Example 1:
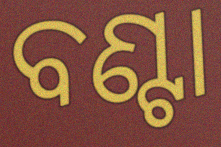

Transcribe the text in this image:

ବଣ୍ଟା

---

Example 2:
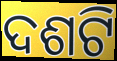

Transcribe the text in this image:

ଦଶଟି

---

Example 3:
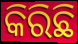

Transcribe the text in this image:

କିରିଛି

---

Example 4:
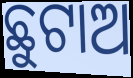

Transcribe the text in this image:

ଛୁଟାଅ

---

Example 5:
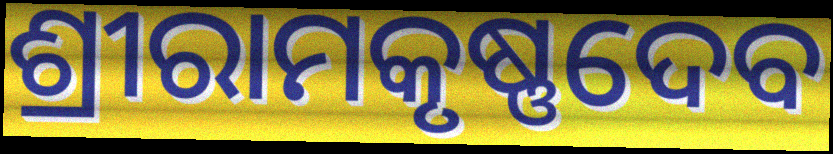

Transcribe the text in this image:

ଶ୍ରୀରାମକୃଷ୍ଣଦେବ